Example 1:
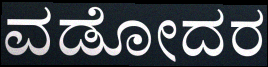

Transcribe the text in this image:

ವಡೋದರ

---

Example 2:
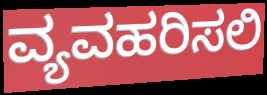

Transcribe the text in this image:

ವ್ಯವಹರಿಸಲಿ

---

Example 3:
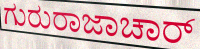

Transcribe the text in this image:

ಗುರುರಾಜಾಚಾರ್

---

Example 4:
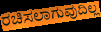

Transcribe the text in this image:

ರಚಿಸಲಾಗುವುದಿಲ್ಲ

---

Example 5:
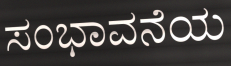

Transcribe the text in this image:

ಸಂಭಾವನೆಯ